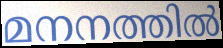
മനനത്തിൽ